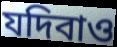
যদিবাও